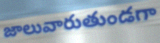
జాలువారుతుండగా